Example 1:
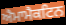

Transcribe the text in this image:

ਐਮਾਮੈਕਟਿਨ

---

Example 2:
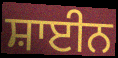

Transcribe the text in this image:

ਸ਼ਾਈਨ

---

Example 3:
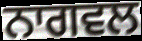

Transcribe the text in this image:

ਨਾਗਵਲ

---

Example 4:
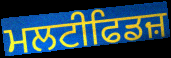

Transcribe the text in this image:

ਮਲਟੀਫਿਡਜ਼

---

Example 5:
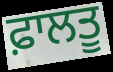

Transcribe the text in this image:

ਫ਼ਾਲਤੂ